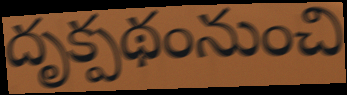
దృక్పథంనుంచి